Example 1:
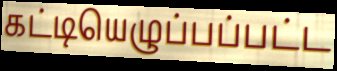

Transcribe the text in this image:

கட்டியெழுப்பப்பட்ட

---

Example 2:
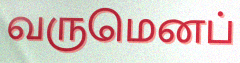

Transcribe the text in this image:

வருமெனப்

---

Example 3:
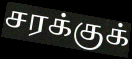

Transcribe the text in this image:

சரக்குக்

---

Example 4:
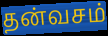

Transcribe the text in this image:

தன்வசம்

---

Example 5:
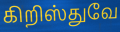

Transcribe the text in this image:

கிறிஸ்துவே